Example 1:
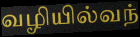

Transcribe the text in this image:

வழியில்வந்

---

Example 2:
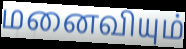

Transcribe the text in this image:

மனைவியும்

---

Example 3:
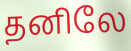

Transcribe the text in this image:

தனிலே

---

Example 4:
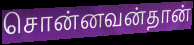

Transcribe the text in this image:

சொன்னவன்தான்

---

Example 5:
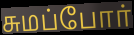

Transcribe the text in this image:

சுமப்போர்